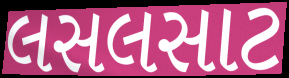
લસલસાટ